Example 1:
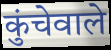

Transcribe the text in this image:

कुंचेवाले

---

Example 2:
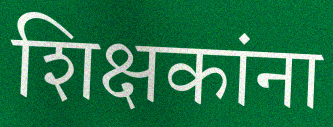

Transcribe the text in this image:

शिक्षकांना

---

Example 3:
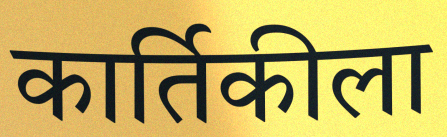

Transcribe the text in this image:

कार्तिकीला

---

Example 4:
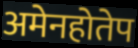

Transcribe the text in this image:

अमेनहोतेप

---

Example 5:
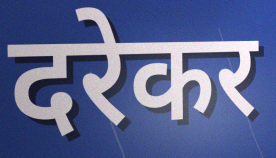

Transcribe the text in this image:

दरेकर